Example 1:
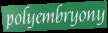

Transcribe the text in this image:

polyembryony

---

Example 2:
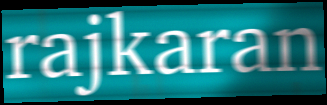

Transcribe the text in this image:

rajkaran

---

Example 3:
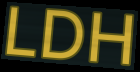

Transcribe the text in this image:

LDH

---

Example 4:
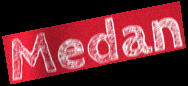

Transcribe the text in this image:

Medan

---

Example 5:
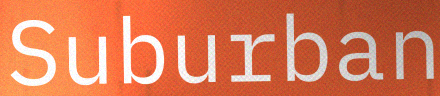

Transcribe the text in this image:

Suburban